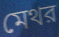
মেথর